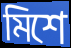
মিশে